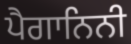
ਪੈਗਾਨਿਨੀ